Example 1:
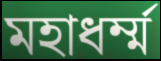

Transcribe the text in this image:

মহাধর্ম্ম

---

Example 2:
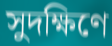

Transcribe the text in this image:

সুদক্ষিণে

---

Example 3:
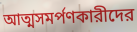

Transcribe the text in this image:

আত্মসমর্পণকারীদের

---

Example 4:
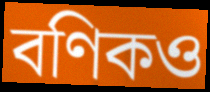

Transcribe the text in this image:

বণিকও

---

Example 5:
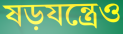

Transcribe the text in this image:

ষড়যন্ত্রেও